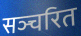
सञ्चरित